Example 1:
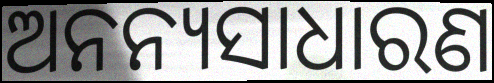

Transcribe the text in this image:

ଅନନ୍ୟସାଧାରଣ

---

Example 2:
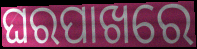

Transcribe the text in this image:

ଘରପାଖରେ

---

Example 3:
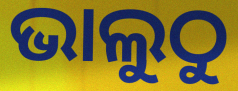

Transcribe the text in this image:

ଭାଲୁଠୁ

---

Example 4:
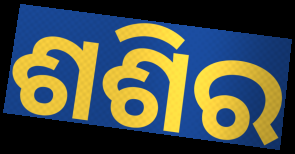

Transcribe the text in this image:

ଶଶିର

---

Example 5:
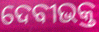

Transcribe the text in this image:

ଦେବୀଭକ୍ତ